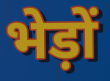
भेड़ों